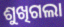
ଶୁଖିଗଲା